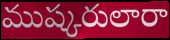
ముష్కరులారా